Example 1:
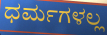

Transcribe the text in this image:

ಧರ್ಮಗಳಲ್ಲ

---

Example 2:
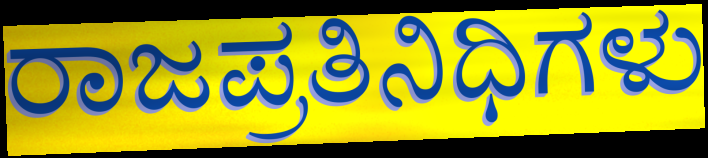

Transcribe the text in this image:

ರಾಜಪ್ರತಿನಿಧಿಗಳು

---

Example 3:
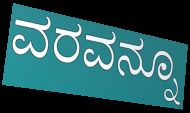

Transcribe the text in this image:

ವರವನ್ನೂ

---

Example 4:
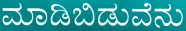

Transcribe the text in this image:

ಮಾಡಿಬಿಡುವೆನು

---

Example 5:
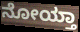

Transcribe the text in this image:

ನೋಯ್ತಾ